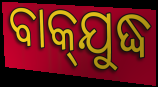
ବାକ୍‌ଯୁଦ୍ଧ